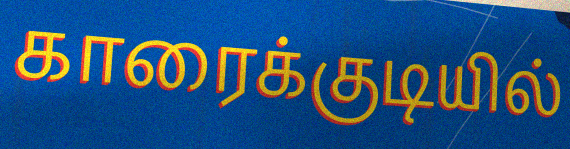
காரைக்குடியில்